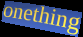
onething